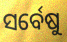
ସର୍ବେଷୁ